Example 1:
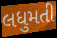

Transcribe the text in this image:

લધુમતી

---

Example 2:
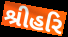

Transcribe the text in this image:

શ્રીહરિ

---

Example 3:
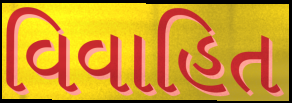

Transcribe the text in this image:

વિવાહિત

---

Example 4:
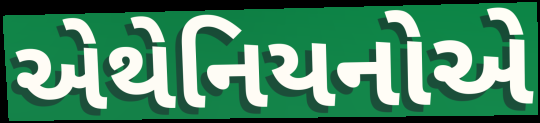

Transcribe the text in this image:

એથેનિયનોએ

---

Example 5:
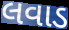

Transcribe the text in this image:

લવાડ